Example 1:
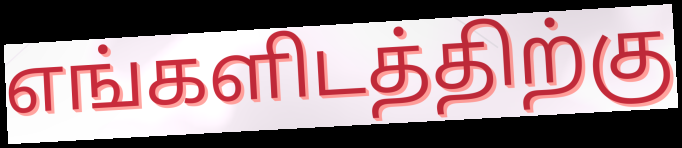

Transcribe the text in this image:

எங்களிடத்திற்கு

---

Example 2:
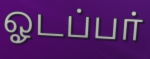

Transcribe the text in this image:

ஓடப்பர்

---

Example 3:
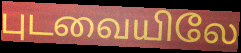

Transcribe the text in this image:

புடவையிலே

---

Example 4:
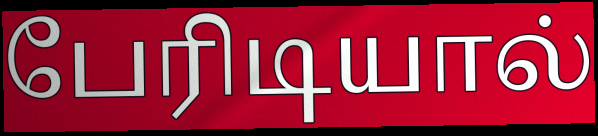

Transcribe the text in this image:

பேரிடியால்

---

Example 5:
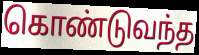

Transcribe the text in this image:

கொண்டுவந்த